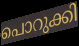
പൊറുക്കി